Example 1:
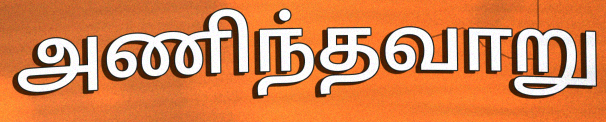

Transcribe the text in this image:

அணிந்தவாறு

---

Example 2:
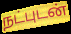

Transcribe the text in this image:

நட்புடன்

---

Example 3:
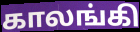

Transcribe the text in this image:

காலங்கி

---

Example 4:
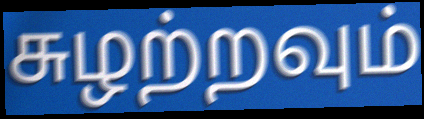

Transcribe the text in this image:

சுழற்றவும்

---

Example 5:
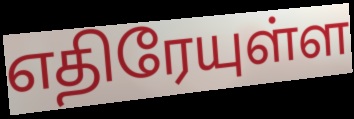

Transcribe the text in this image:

எதிரேயுள்ள